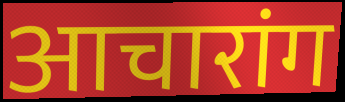
आचारांग